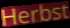
Herbst